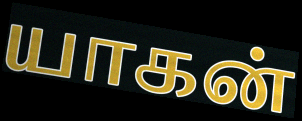
யாகன்